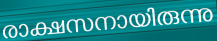
രാക്ഷസനായിരുന്നു